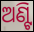
ଅଣ୍ଟି